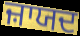
ਜ਼ਾਯਦ